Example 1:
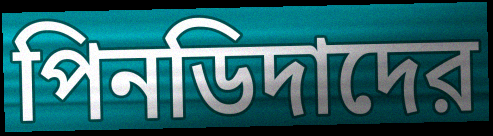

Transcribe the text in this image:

পিনডিদাদের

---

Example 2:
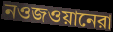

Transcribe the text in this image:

নওজওয়ানেরা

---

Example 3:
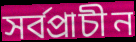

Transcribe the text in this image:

সর্বপ্রাচীন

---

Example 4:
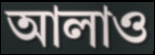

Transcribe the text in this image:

আলাও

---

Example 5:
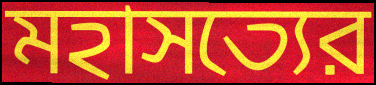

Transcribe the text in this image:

মহাসত্যের